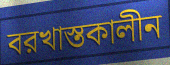
বরখাস্তকালীন